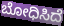
ಬೋಧಿಸಿದೆ